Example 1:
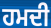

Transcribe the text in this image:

ਹਮਦੀ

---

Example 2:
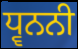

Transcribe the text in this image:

ਧ੍ਵਨਨੀ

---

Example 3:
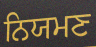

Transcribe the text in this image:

ਨਿਯਮਣ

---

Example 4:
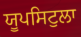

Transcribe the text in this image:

ਯੂਪਸਿਟੁਲਾ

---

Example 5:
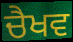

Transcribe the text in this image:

ਚੈਖਵ